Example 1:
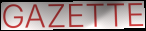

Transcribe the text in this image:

GAZETTE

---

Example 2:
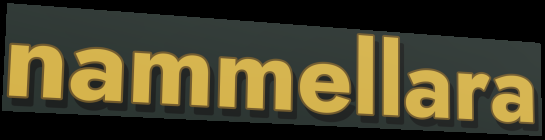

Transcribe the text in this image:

nammellara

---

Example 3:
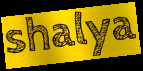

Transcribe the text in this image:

shalya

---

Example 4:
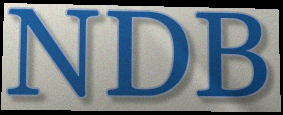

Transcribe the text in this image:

NDB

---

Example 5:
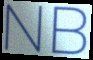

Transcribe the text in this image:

NB